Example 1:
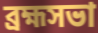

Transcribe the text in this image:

ব্রহ্মসভা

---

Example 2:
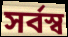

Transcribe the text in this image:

সর্বস্ব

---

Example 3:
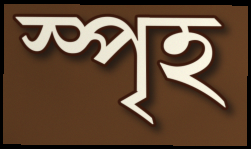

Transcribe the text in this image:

স্পৃহ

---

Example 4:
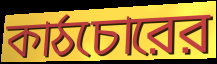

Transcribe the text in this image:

কাঠচোরের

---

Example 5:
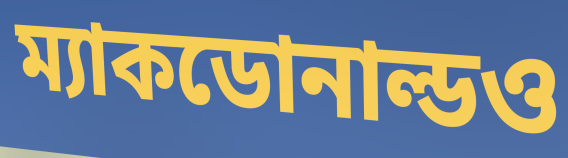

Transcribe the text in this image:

ম্যাকডোনাল্ডও